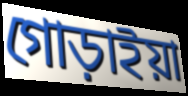
গোড়াইয়া